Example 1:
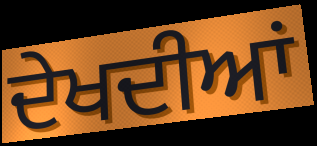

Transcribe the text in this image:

ਦੇਖਦੀਆਂ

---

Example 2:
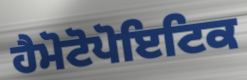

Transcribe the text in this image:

ਹੈਮੋਟੋਪੋਇਟਿਕ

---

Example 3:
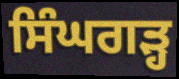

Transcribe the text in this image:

ਸਿੰਘਗੜ੍ਹ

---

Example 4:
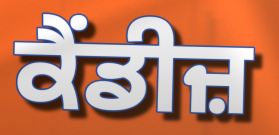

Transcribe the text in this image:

ਕੈਂਡੀਜ਼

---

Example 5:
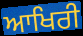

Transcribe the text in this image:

ਆਖਿਰੀ